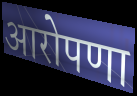
आरोपणा